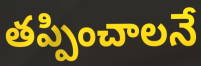
తప్పించాలనే